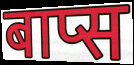
बाप्स